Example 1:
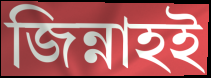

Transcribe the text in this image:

জিন্নাহই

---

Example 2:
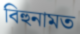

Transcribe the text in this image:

বিহুনামত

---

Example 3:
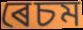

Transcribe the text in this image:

ৰেচম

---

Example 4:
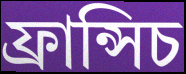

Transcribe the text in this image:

ফ্ৰান্সিচ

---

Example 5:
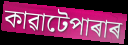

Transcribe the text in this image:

কাৱাটেপাৰাৰ